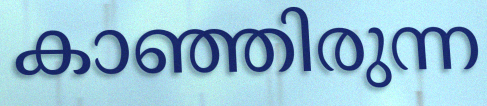
കാഞ്ഞിരുന്ന